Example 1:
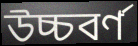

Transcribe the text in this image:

উচ্চবর্ণ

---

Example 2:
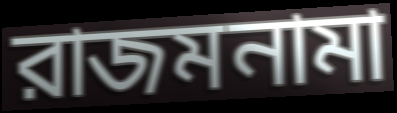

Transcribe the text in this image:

রাজমনামা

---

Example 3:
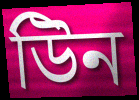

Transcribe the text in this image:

উিন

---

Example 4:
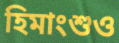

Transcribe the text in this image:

হিমাংশুও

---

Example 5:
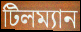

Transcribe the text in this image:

টিলম্যান